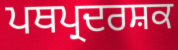
ਪਥਪ੍ਰਦਰਸ਼ਕ